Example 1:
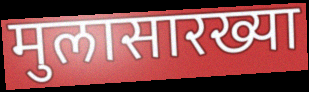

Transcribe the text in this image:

मुलासारख्या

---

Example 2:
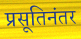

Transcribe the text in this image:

प्रसूतिनंतर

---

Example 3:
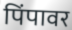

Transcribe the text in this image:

पिंपावर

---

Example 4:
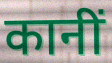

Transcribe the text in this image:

कानीं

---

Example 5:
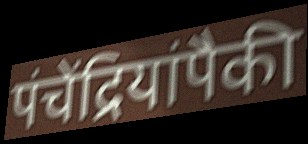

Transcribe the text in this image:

पंचेंद्रियांपैकी